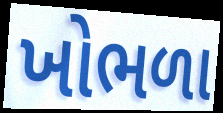
ખોભળા